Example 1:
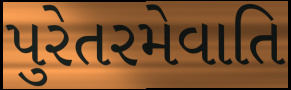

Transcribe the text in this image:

પુરેતરમેવાતિ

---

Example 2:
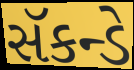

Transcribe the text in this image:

સૅકન્ડે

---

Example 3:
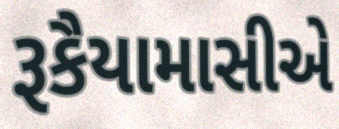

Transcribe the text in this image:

રૂકૈયામાસીએ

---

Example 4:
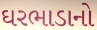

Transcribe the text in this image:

ઘરભાડાનો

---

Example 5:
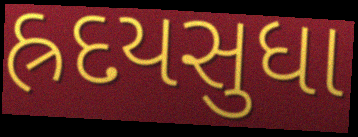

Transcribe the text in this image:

હ્રદયસુધા